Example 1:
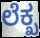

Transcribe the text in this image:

ಲೆಕ್ಖ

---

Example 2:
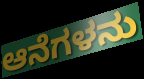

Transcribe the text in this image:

ಆನೆಗಳನು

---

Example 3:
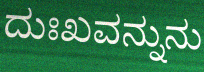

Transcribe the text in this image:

ದುಃಖವನ್ನುನು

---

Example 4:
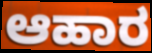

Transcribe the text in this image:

ಆಹಾರ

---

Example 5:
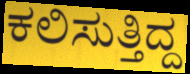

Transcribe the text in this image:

ಕಲಿಸುತ್ತಿದ್ದ